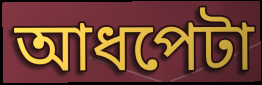
আধপেটা